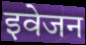
इवेजन